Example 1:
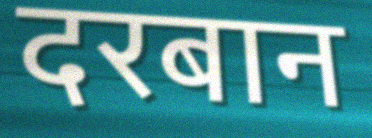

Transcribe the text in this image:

दरबान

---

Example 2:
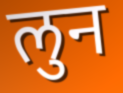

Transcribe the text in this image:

लुन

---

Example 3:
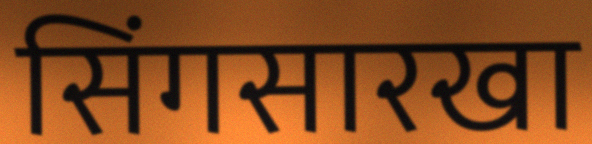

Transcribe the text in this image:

सिंगसारखा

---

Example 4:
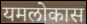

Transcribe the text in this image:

यमलोकास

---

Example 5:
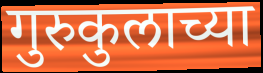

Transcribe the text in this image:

गुरुकुलाच्या